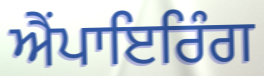
ਐਂਪਾਇਰਿੰਗ